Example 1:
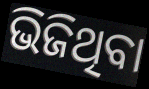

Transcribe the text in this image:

ଭିଜିଥିବା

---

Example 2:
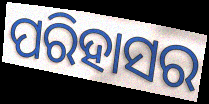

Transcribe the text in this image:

ପରିହାସର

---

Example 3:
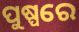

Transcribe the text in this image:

ପୁଷ୍ପରେ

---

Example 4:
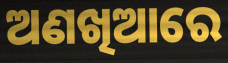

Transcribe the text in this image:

ଅଣଖିଆରେ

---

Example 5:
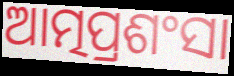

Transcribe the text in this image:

ଆତ୍ମପ୍ରଶଂସା